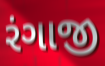
રંગાજી